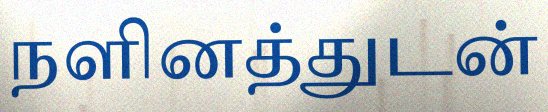
நளினத்துடன்